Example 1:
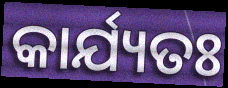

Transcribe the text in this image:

କାର୍ଯ୍ୟତଃ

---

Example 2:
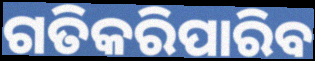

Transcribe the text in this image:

ଗତିକରିପାରିବ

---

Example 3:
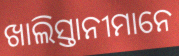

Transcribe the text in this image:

ଖାଲିସ୍ତାନୀମାନେ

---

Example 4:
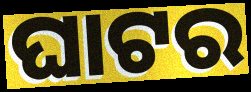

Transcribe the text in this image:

ଘାଟର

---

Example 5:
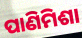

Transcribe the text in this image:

ପାଣିମିଶା